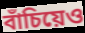
বাঁচিয়েও